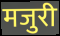
मजुरी